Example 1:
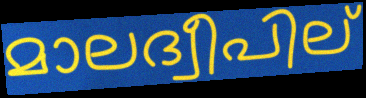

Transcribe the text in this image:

മാലദ്വീപില്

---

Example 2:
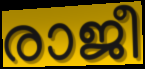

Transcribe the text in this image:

രാജീ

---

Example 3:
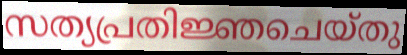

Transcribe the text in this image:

സത്യപ്രതിജ്ഞചെയ്തു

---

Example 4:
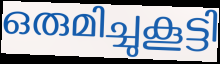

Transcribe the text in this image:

ഒരുമിച്ചുകൂട്ടി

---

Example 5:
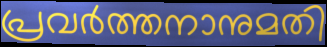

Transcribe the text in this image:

പ്രവർത്തനാനുമതി